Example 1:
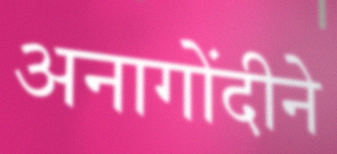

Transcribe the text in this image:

अनागोंदीने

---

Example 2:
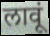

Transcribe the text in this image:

लावूं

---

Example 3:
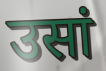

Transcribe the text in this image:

उसां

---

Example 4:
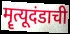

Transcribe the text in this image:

मॄत्यूदंडाची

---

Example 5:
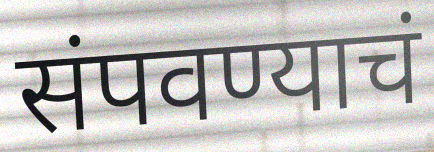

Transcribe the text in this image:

संपवण्याचं